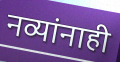
नव्यांनाही